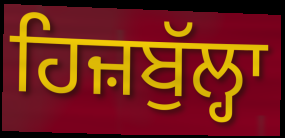
ਹਿਜ਼ਬੁੱਲ੍ਹਾ